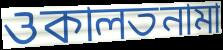
ওকালতনামা